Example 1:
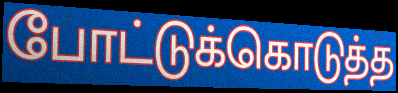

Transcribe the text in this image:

போட்டுக்கொடுத்த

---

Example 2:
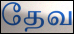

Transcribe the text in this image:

தேவ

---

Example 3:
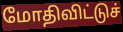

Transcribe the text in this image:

மோதிவிட்டுச்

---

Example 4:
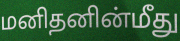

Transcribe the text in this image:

மனிதனின்மீது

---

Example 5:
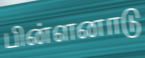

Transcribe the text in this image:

பின்ளனாடு